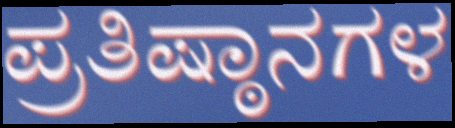
ಪ್ರತಿಷ್ಠಾನಗಳ